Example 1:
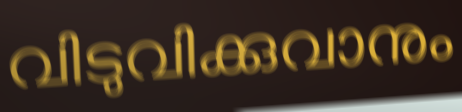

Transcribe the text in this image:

വിടുവിക്കുവാനും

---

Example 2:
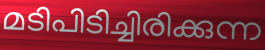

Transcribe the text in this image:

മടിപിടിച്ചിരിക്കുന്ന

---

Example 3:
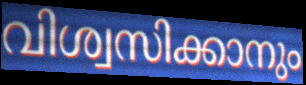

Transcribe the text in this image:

വിശ്വസിക്കാനും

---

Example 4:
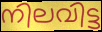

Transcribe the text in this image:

നിലവിട്ട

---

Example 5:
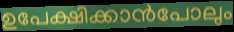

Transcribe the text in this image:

ഉപേക്ഷിക്കാൻപോലും